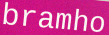
bramho